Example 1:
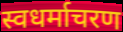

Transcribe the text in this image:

स्वधर्माचरण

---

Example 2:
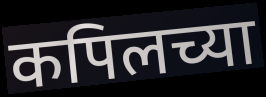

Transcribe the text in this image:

कपिलच्या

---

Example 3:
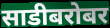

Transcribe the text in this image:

साडीबरोबर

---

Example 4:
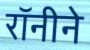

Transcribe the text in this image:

रॉनीने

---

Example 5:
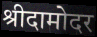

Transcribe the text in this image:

श्रीदामोदर